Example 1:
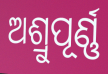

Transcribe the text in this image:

ଅଶ୍ରୁପୂର୍ଣ୍ଣ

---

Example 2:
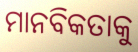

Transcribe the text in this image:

ମାନବିକତାକୁ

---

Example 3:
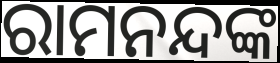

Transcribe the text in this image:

ରାମନନ୍ଦଙ୍କ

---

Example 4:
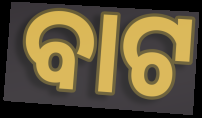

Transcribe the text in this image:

ବାଟ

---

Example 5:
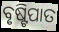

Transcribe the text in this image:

ବୃଷ୍ଟିପାତ